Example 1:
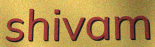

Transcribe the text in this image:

shivam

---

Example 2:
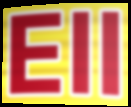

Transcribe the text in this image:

Ell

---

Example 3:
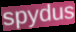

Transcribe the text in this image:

spydus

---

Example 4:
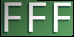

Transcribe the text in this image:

FFF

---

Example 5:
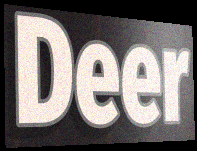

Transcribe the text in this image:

Deer